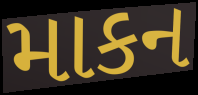
માકન